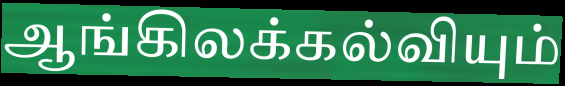
ஆங்கிலக்கல்வியும்